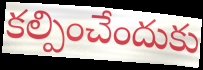
కల్పించేందుకు